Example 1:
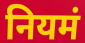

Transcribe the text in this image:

नियमं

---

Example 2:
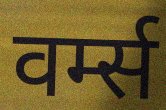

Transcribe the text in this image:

वर्म्स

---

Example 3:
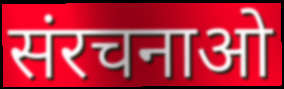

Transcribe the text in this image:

संरचनाओ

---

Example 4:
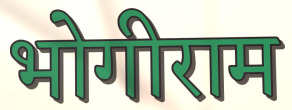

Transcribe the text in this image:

भोगीराम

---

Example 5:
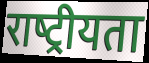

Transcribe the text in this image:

राष्ट्रीयता